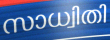
സാധ്വിതി